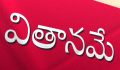
వితానమే